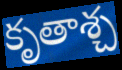
కృతాశ్చ